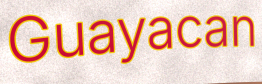
Guayacan